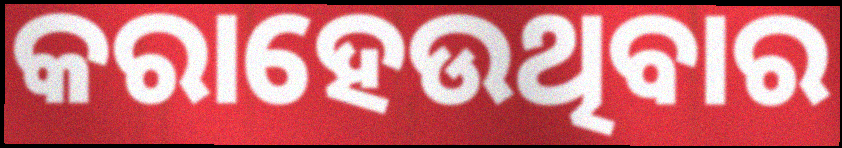
କରାହେଉଥିବାର